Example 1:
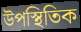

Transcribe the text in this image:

উপস্থিতিক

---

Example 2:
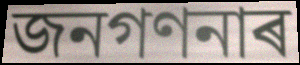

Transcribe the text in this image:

জনগণনাৰ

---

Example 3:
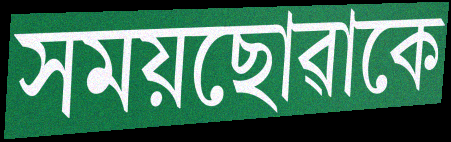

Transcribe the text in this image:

সময়ছোৱাকে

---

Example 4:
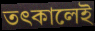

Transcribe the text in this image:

তৎকালেই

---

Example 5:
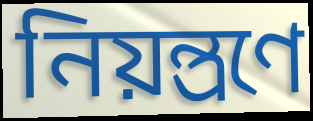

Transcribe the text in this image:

নিয়ন্ত্ৰণে